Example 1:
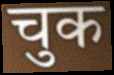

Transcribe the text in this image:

चुक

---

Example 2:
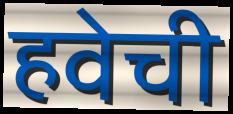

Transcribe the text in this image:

हवेची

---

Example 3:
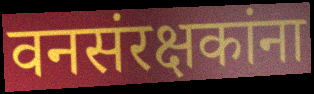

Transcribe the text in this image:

वनसंरक्षकांना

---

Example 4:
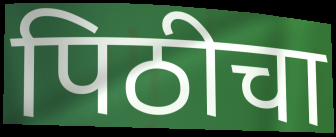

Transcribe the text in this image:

पिठीचा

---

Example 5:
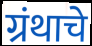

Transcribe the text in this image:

ग्रंथाचे